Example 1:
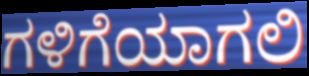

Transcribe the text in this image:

ಗಳಿಗೆಯಾಗಲಿ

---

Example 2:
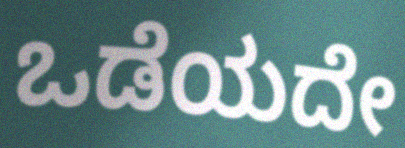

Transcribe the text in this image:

ಒಡೆಯದೇ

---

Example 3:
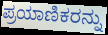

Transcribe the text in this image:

ಪ್ರಯಾಣಿಕರನ್ನು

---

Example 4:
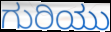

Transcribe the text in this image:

ಗುರಿಯು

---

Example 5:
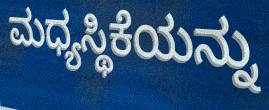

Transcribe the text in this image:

ಮಧ್ಯಸ್ಥಿಕೆಯನ್ನು